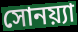
সোনয়্যা